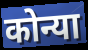
कोन्या